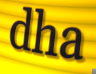
dha